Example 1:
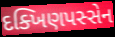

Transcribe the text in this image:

દક્ખિણપસ્સેન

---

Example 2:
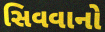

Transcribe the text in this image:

સિવવાનો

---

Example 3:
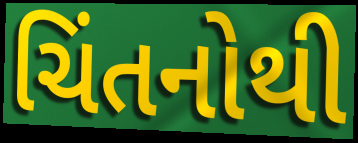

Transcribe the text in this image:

ચિંતનોથી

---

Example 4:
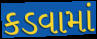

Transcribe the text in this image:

કડવામાં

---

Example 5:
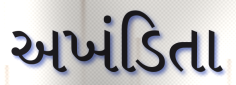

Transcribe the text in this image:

અખંડિતા